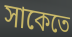
সাকেতে